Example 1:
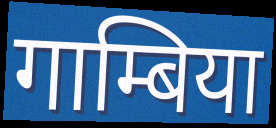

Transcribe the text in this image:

गाम्बिया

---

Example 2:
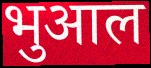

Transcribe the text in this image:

भुआल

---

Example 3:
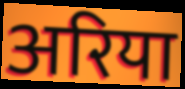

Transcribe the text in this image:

अरिया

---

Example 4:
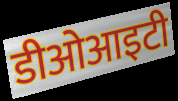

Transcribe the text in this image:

डीओआइटी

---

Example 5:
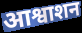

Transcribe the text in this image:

आश्वाशन